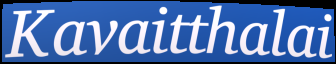
Kavaitthalai